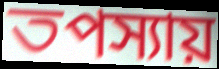
তপস্যায়